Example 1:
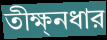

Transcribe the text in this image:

তীক্ষ্নধার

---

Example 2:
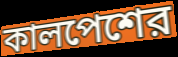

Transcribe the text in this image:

কালপেশের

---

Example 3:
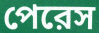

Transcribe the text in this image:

পেরেস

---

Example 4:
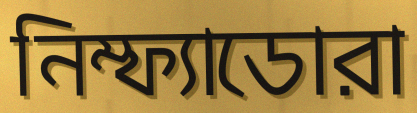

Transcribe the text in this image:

নিম্ফ্যাডোরা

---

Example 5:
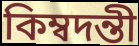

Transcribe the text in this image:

কিম্বদন্তী